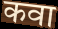
कवा